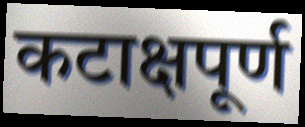
कटाक्षपूर्ण